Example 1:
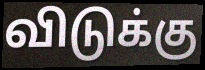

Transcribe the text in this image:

விடுக்கு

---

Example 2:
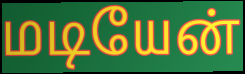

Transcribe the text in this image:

மடியேன்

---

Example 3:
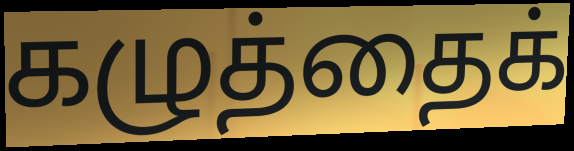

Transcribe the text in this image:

கழுத்தைக்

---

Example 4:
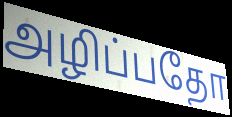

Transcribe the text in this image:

அழிப்பதோ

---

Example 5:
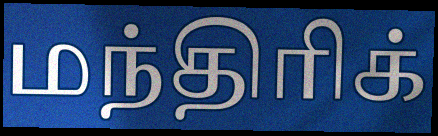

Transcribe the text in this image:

மந்திரிக்